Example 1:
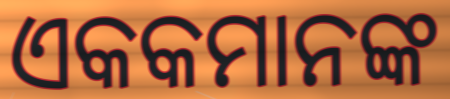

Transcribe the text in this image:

ଏକକମାନଙ୍କ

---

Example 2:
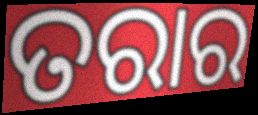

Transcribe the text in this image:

ତରାର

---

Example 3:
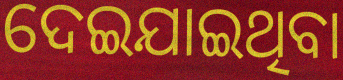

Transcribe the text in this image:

ଦେଇଯାଇଥିବା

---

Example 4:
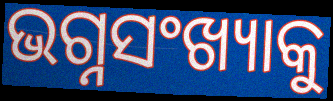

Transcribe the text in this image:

ଭଗ୍ନସଂଖ୍ୟାକୁ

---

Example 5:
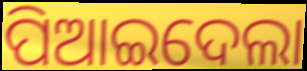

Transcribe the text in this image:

ପିଆଇଦେଲା